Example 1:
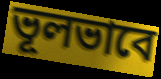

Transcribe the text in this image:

ভূলভাবে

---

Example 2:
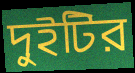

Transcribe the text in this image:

দুইটির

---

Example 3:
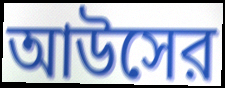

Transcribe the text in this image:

আউসের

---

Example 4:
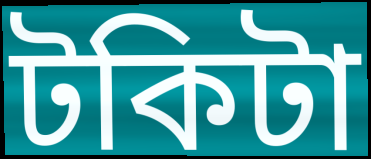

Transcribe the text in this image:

টকিটা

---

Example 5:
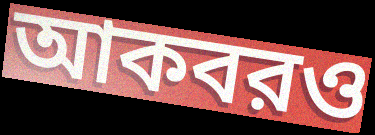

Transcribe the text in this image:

আকবরও